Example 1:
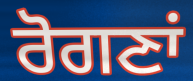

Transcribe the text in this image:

ਰੋਗਣਾਂ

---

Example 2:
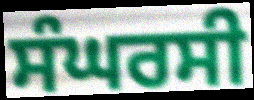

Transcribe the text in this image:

ਸੰਘਰਸੀ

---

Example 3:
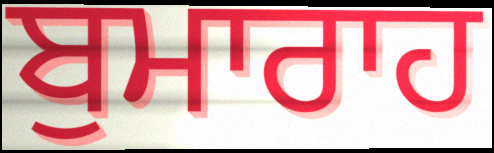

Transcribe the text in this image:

ਬੁਮਾਰਾਹ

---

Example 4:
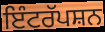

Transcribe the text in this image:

ਇੰਟਰੱਪਸ਼ਨ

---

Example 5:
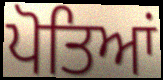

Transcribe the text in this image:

ਪੋਤਿਆਂ